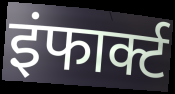
इंफार्क्ट